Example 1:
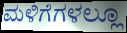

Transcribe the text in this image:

ಮಳಿಗೆಗಳಲ್ಲೂ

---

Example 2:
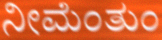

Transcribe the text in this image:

ನೀಮೆಂತುಂ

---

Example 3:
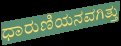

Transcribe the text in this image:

ಧಾರುಣಿಯನವಗಿತ್ತು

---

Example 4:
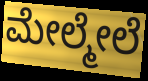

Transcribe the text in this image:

ಮೇಲ್ಮೇಲೆ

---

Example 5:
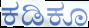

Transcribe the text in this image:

ಕಡಿಕೂ